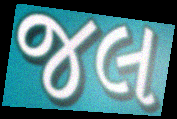
જલ